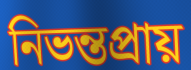
নিভন্তপ্রায়